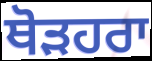
ਥੋੜਹਰਾ